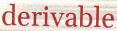
derivable